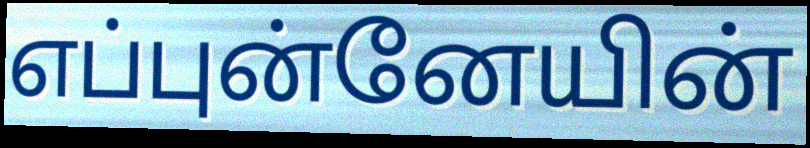
எப்புன்னேயின்